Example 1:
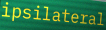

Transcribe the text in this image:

ipsilateral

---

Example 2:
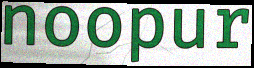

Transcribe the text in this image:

noopur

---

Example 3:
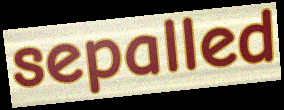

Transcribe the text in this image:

sepalled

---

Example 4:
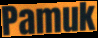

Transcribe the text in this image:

Pamuk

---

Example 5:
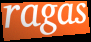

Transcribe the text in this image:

ragas